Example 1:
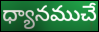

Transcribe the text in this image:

ధ్యానముచే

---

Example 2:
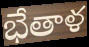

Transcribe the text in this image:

భేతాళ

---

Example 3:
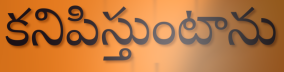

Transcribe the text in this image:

కనిపిస్తుంటాను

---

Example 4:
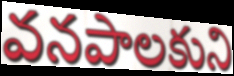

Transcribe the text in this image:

వనపాలకుని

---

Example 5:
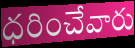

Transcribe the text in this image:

ధరించేవారు